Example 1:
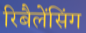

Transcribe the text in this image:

रिबैलेंसिंग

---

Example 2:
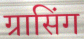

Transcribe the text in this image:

ग्रासिंग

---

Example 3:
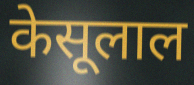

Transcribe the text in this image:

केसूलाल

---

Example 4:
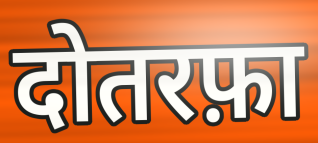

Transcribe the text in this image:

दोतरफ़ा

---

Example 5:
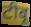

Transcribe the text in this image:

टीबू